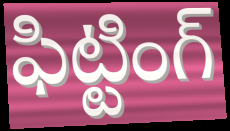
ఫిట్టింగ్